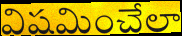
విషమించేలా